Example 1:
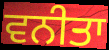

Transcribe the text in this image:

ਵਨੀਤਾ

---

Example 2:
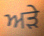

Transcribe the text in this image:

ਅੜੇ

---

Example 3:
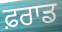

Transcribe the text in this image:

ਫ਼ਰਾਡ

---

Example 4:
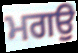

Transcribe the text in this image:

ਮਗਉ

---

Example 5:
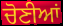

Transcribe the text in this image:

ਚੋਣੀਆਂ